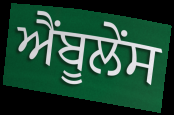
ਐਂਬੂਲੇਂਸ